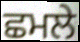
ਛਮਲੇ